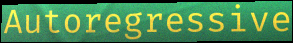
Autoregressive